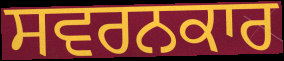
ਸਵਰਨਕਾਰ